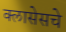
क्लासेसचे